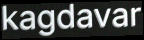
kagdavar